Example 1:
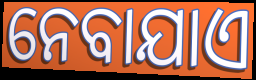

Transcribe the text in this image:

ନେବାଯାଏ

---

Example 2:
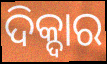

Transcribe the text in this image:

ଦିକ୍ଦାର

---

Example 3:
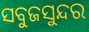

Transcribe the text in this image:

ସବୁଜସୁନ୍ଦର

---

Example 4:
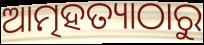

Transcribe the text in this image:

ଆତ୍ମହତ୍ୟାଠାରୁ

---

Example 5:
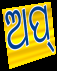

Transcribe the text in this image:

ଅପ୍